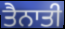
ਤੈਨਾਤੀ